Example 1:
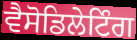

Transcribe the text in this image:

ਵੈਸੋਡਿਲੇਟਿੰਗ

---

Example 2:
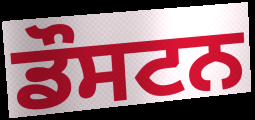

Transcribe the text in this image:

ਡੌਸਟਨ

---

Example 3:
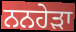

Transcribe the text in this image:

ਨਨਹੇੜਾ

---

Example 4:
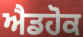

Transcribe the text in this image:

ਐਡਹੋਕ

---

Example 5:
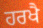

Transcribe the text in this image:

ਹਰਖੈ